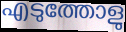
എടുത്തോളു